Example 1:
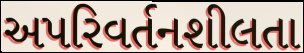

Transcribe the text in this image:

અપરિવર્તનશીલતા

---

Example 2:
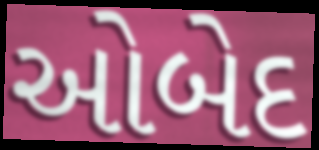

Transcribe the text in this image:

ઓબેદ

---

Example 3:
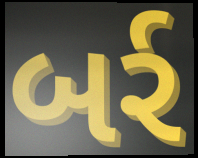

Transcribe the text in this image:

બર્ર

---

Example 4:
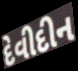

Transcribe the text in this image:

દેવીદીન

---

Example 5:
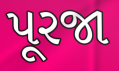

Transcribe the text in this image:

પૂરજા